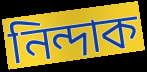
নিন্দাক